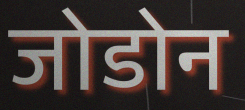
जोडोन